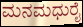
ಮನಮಧುರೈ